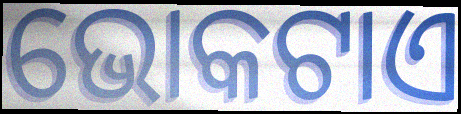
ଭୋକଟାଏ